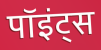
पॉइंट्स